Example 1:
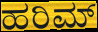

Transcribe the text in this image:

ಹರಿಮ್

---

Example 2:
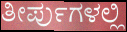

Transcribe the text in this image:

ತೀರ್ಪುಗಳಲ್ಲಿ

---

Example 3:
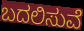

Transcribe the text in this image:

ಬದಲಿಸುವೆ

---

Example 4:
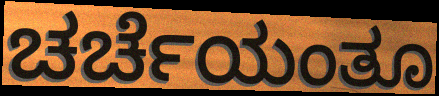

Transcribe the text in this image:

ಚರ್ಚೆಯಂತೂ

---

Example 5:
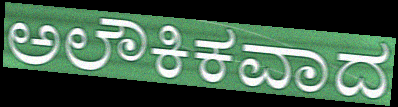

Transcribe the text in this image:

ಅಲೌಕಿಕವಾದ